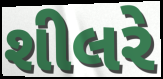
શીલરે